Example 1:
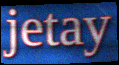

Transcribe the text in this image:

jetay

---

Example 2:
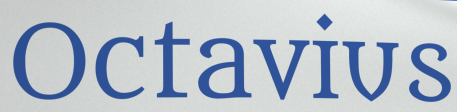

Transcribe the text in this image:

Octavius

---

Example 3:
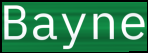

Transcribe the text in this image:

Bayne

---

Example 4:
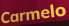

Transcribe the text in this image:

Carmelo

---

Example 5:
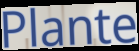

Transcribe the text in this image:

Plante